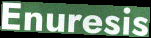
Enuresis